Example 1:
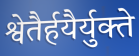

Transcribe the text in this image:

श्वेतैर्हयैर्युक्ते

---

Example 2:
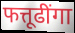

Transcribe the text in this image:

फत्तूढींगा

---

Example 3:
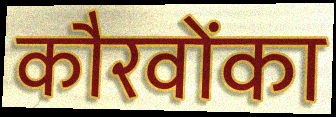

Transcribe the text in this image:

कौरवोंका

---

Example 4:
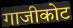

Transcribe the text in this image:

गाजीकोट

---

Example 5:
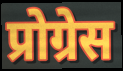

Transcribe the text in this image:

प्रोग्रेस